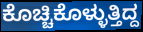
ಕೊಚ್ಚಿಕೊಳ್ಳುತ್ತಿದ್ದ